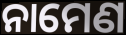
ନାମେଣ